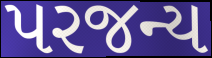
પરજન્ય